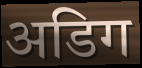
अडिग